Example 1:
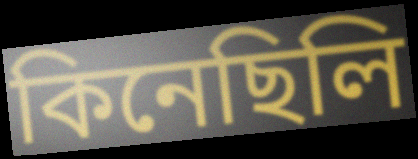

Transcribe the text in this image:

কিনেছিলি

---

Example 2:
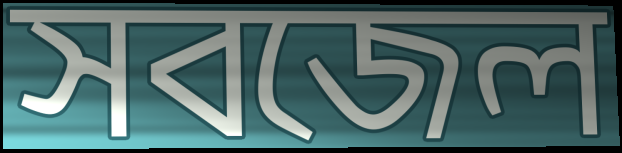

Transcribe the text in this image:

সবজেল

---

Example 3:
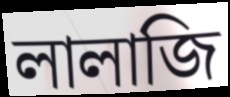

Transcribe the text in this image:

লালাজি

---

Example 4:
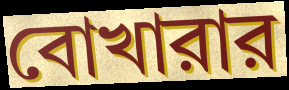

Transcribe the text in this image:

বোখারার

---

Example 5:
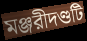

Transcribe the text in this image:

মঞ্জরীদণ্ডটি